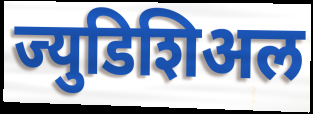
ज्युडिशिअल